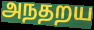
அநதறய